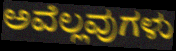
ಅವೆಲ್ಲವುಗಳು